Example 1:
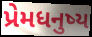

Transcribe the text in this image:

પ્રેમધનુષ્ય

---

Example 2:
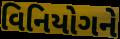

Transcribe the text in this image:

વિનિયોગને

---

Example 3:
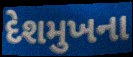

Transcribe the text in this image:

દેશમુખના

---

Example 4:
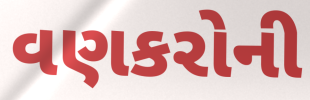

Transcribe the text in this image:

વણકરોની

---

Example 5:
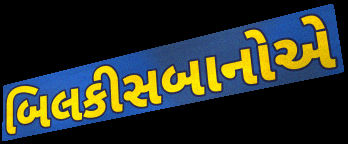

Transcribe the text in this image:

બિલકીસબાનોએ